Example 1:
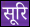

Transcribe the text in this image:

सूरि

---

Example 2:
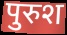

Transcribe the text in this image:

पुरुश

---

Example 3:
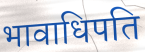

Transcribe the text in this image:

भावाधिपति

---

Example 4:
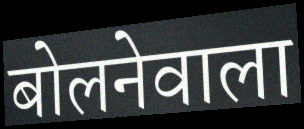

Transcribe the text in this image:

बोलनेवाला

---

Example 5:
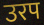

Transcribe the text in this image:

उरप